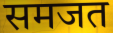
समजत